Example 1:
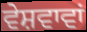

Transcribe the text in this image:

ਵੇਸ਼ਵਾਵਾਂ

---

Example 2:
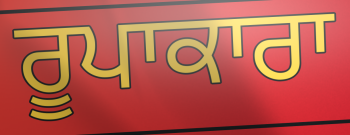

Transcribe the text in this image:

ਰੂਪਾਕਾਰਾ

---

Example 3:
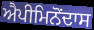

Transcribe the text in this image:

ਐਪੀਮਿਨੋਂਦਾਸ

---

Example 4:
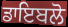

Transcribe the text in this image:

ਡਾਇਬਲੋ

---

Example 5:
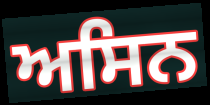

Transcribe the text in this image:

ਅਸਿਨ